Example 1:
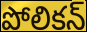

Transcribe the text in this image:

పోలికన్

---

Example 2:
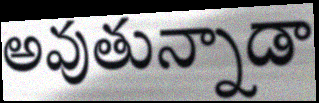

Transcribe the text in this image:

అవుతున్నాడా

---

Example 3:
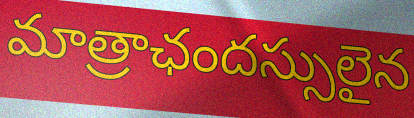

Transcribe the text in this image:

మాత్రాఛందస్సులైన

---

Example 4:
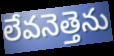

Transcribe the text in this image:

లేవనెత్తెను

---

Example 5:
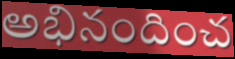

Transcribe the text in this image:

అభినందించ